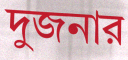
দুজনার